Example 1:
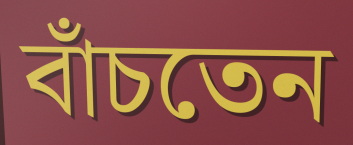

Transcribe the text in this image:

বাঁচতেন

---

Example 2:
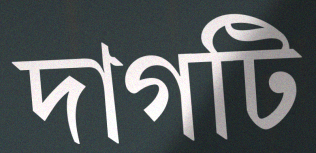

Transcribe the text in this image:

দাগটি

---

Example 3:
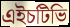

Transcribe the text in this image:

এইচটিভি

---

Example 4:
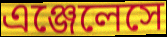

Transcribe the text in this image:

এঞ্জেলেসে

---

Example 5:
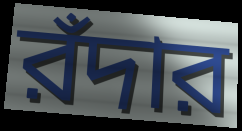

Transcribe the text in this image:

রঁদার